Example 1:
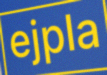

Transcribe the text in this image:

ejpla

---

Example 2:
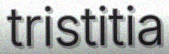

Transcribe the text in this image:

tristitia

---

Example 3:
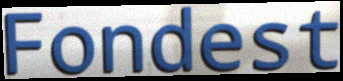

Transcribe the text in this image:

Fondest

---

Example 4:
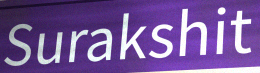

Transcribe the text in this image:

Surakshit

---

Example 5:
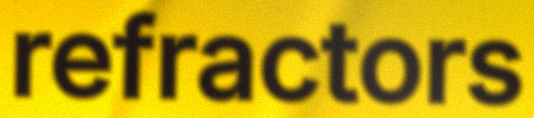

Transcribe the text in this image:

refractors